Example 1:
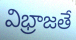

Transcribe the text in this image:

విభ్రాజతే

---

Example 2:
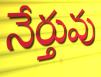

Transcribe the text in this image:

నేర్తువు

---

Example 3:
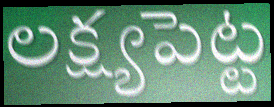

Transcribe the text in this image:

లక్ష్యపెట్ట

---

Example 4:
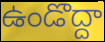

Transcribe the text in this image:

ఉండొద్దా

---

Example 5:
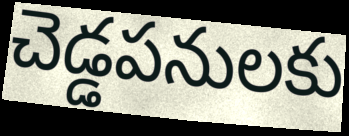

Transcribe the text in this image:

చెడ్డపనులకు